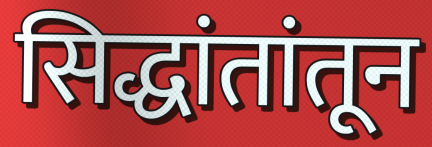
सिद्धांतांतून